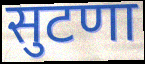
सुटणा